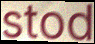
stod